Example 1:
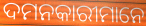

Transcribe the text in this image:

ଦମନକାରୀମାନେ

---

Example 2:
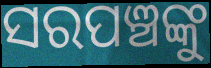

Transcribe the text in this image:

ସରପଞ୍ଚଙ୍କୁ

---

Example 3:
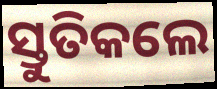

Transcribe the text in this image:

ସ୍ତୁତିକଲେ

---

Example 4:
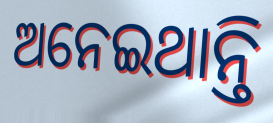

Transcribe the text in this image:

ଅନେଇଥାନ୍ତି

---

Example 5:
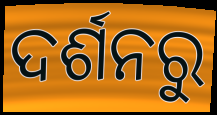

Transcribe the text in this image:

ଦର୍ଶନରୁ